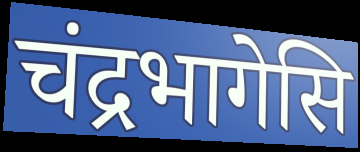
चंद्रभागेसि